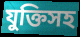
যুক্তিসহ